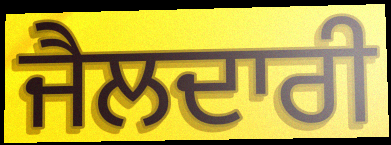
ਜੈਲਦਾਰੀ